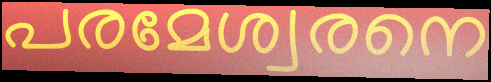
പരമേശ്വരനെ